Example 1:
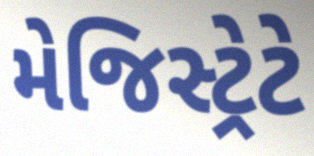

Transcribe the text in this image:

મેજિસ્ટ્રેટે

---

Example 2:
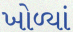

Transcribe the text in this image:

ખોળ્યાં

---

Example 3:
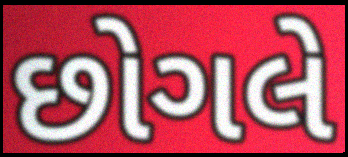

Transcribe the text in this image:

છોગલે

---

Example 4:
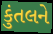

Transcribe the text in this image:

કુંતલને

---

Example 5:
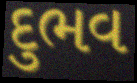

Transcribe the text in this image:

દુભવ